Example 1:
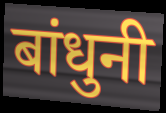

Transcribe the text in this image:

बांधुनी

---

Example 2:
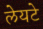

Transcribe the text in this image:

लेयटे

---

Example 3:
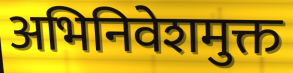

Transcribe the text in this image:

अभिनिवेशमुक्त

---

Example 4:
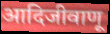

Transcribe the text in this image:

आदिजीवाणू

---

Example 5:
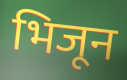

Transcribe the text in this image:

भिजून